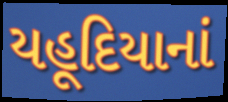
યહૂદિયાનાં